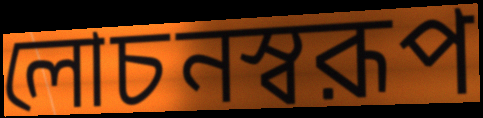
লোচনস্বরূপ